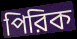
পিরিক